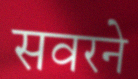
सवरने